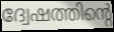
ദ്വേഷത്തിന്റെ